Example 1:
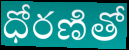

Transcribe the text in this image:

ధోరణితో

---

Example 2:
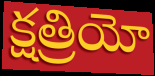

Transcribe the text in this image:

క్షత్రియో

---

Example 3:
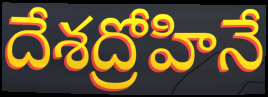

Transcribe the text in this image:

దేశద్రోహినే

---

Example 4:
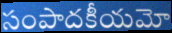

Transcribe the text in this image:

సంపాదకీయమో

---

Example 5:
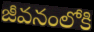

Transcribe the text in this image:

జీవనంలోకి